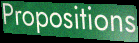
Propositions